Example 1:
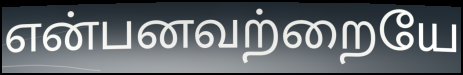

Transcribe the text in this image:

என்பனவற்றையே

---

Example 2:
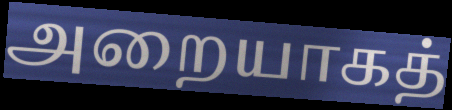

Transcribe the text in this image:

அறையாகத்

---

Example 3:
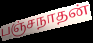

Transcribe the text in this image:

பஞ்சநாதன்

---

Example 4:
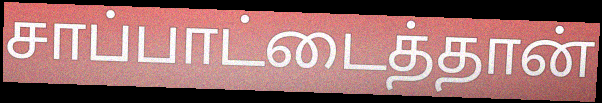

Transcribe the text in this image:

சாப்பாட்டைத்தான்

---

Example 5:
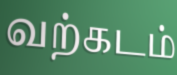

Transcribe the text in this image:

வற்கடம்